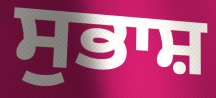
ਸੁਭਾਸ਼